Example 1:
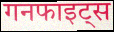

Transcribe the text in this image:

गनफाइट्स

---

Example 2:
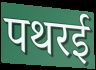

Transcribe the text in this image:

पथरई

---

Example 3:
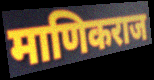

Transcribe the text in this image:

माणिकराज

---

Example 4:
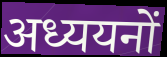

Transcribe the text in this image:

अध्ययनों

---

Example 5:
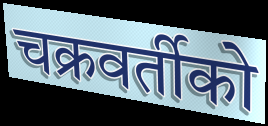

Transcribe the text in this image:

चक्रवर्तीको